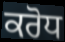
ਕਰੋਧ